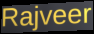
Rajveer